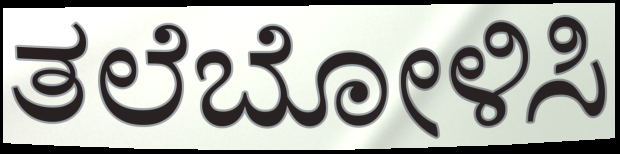
ತಲೆಬೋಳಿಸಿ